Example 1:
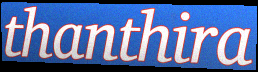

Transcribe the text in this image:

thanthira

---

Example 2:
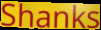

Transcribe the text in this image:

Shanks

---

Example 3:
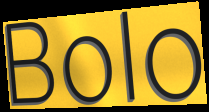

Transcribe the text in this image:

Bolo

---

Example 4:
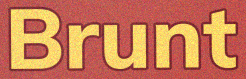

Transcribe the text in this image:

Brunt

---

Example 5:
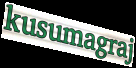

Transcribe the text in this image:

kusumagraj